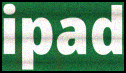
ipad